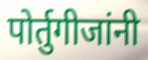
पोर्तुगीजांनी